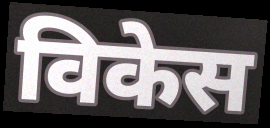
विकेस